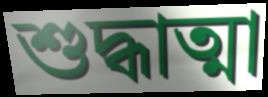
শুদ্ধাত্মা